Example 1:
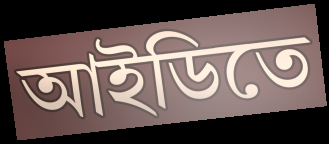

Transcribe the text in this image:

আইডিতে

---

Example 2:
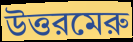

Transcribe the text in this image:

উত্তরমেরু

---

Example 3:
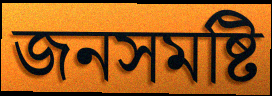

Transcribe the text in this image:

জনসমষ্টি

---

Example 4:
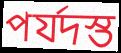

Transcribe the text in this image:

পর্যদস্ত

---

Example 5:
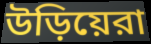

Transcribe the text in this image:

উড়িয়েরা